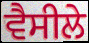
ਵੈਸੀਲੇ